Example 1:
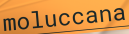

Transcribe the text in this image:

moluccana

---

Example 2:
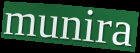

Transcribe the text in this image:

munira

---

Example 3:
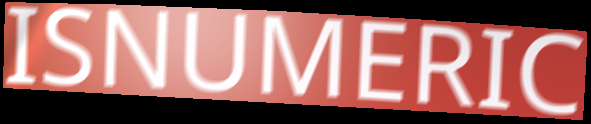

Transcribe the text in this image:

ISNUMERIC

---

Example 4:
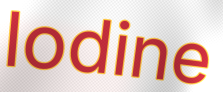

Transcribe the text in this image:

lodine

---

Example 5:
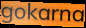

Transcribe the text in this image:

gokarna